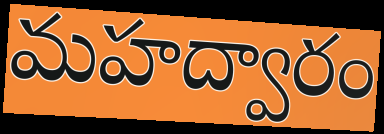
మహద్వారం